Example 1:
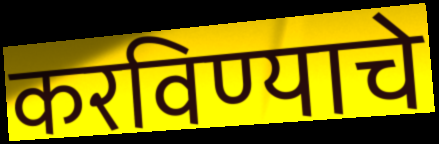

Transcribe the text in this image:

करविण्याचे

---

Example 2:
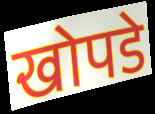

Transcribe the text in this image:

खोपडे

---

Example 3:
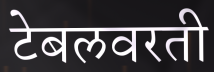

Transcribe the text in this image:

टेबलवरती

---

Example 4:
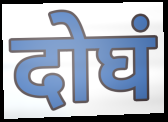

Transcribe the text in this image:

दोघं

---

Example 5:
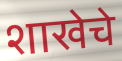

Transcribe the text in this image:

शाखेचे